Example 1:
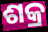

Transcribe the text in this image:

ଶକ୍ର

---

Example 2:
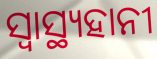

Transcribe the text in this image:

ସ୍ବାସ୍ଥ୍ୟହାନୀ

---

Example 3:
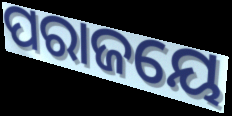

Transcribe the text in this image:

ପରାଜୟେ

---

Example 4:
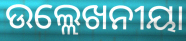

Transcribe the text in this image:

ଉଲ୍ଲେଖନୀୟା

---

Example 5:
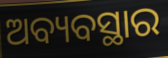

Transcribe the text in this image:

ଅବ୍ୟବସ୍ଥାର